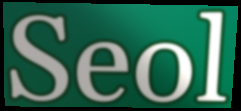
Seol